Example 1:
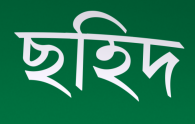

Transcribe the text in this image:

ছহিদ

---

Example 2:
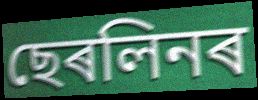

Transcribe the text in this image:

ছেৰলিনৰ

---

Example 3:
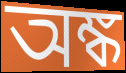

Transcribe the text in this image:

অঙ্ক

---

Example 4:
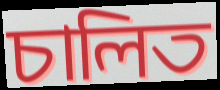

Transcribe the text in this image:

চালিত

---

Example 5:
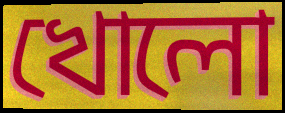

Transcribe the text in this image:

খোলো